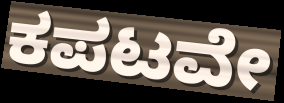
ಕಪಟವೇ